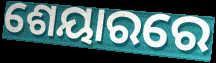
ଶେୟାରରେ